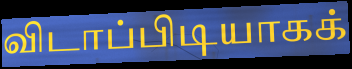
விடாப்பிடியாகக்